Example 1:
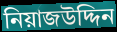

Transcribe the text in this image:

নিয়াজউদ্দিন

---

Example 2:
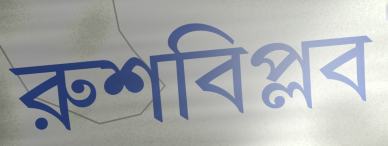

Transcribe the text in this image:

রুশবিপ্লব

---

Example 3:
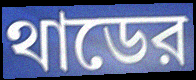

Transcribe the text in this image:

থাডের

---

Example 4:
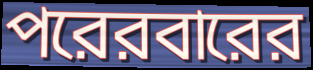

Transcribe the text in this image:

পরেরবারের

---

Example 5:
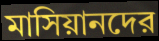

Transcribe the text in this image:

মাসিয়ানদের